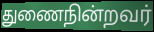
துணைநின்றவர்